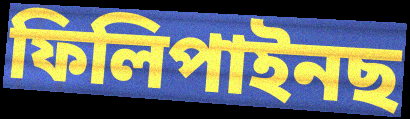
ফিলিপাইনছ